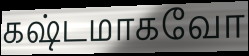
கஷ்டமாகவோ